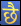
छै